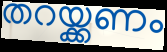
തറയ്ക്കണം